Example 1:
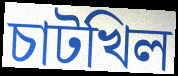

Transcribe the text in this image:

চাটখিল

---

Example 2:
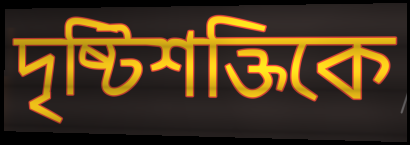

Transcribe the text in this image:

দৃষ্টিশক্তিকে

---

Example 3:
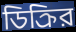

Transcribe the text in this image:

ডিক্রির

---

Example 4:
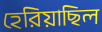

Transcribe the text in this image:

হেরিয়াছিল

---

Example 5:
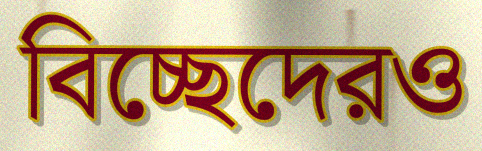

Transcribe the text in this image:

বিচ্ছেদেরও